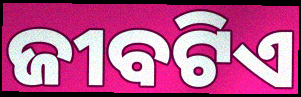
ଜୀବଟିଏ